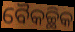
ବୈକଚ୍ଛିକ